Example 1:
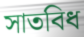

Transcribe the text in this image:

সাতবিধ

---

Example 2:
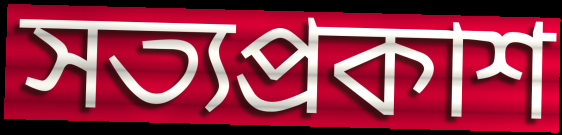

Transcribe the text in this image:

সত্যপ্ৰকাশ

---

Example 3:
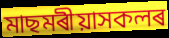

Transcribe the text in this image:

মাছমৰীয়াসকলৰ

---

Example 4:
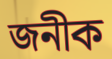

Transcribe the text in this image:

জনীক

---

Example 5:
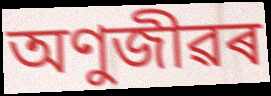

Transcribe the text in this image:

অণুজীৱৰ